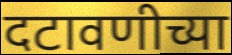
दटावणीच्या